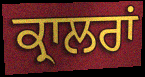
ਕ੍ਰਾਲਰਾਂ